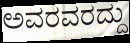
ಅವರವರದ್ದು